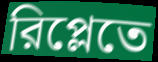
রিপ্লেতে